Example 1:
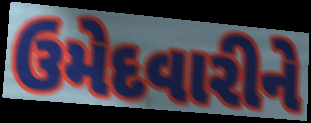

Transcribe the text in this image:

ઉમેદવારીને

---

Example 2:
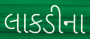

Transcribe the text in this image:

લાકડીના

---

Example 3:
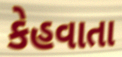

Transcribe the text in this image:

કેહવાતા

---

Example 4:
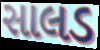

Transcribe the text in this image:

સાલડ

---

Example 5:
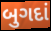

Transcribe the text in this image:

બુગદાં